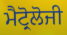
ਮੈਟ੍ਰੋਲੋਜੀ